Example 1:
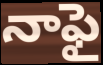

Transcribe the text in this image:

నాఫై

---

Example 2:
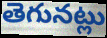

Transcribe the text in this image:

తెగునట్లు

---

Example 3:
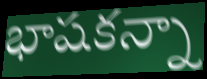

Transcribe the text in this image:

భాషకన్నా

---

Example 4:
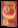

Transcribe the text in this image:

లై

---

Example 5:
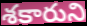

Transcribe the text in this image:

శకారుని